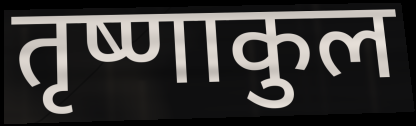
तृष्णाकुल